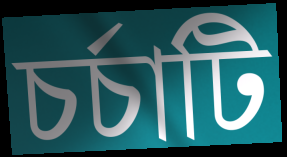
চর্চাটি